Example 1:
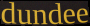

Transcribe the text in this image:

dundee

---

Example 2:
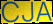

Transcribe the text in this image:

CJA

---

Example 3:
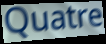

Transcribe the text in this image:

Quatre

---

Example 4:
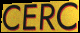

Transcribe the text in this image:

CERC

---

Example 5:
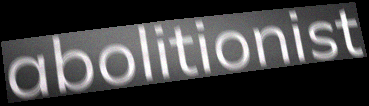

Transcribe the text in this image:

abolitionist